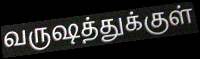
வருஷத்துக்குள்